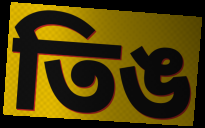
তিঙ